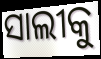
ସାଲୀକୁ